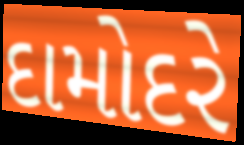
દામોદરે